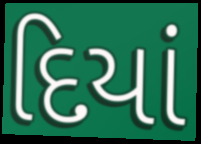
દિયાં